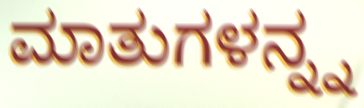
ಮಾತುಗಳನ್ನ್ನ